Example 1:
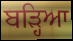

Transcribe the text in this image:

ਬੜ੍ਹਿਆ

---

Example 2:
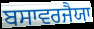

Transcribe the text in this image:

ਬਸਾਵਰਜੈਯਾ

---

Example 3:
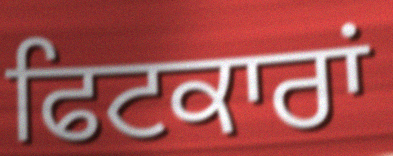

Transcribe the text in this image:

ਫਿਟਕਾਰਾਂ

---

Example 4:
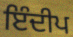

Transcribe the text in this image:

ਇੰਦੀਪ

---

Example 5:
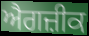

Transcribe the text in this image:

ਐਗਜ਼ੀਕ